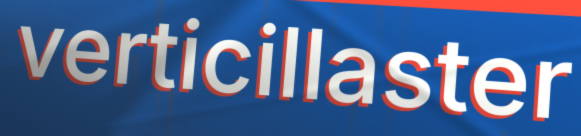
verticillaster